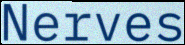
Nerves